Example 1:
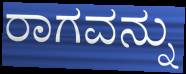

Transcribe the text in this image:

ರಾಗವನ್ನು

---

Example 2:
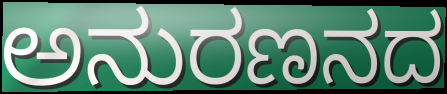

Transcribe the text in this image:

ಅನುರಣನದ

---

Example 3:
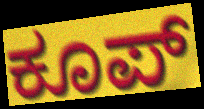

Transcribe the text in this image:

ಕೂಪ್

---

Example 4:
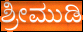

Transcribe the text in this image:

ಶ್ರೀಮುಡಿ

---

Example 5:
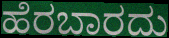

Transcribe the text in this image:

ಹೆರಬಾರದು